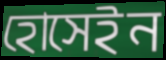
হোসেইন